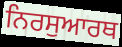
ਨਿਰਸੁਆਰਥ